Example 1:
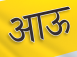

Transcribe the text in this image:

आऊ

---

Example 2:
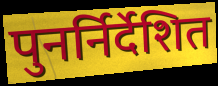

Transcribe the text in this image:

पुनर्निर्देशित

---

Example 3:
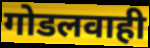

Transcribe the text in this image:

गोडलवाही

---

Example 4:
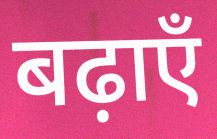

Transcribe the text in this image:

बढ़ाएँ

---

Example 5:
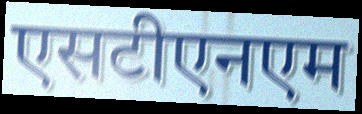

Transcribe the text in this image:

एसटीएनएम